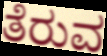
ತೆರುವ